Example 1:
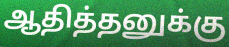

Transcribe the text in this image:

ஆதித்தனுக்கு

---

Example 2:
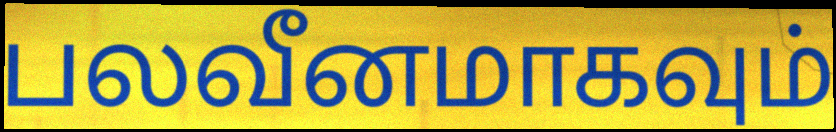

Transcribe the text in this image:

பலவீனமாகவும்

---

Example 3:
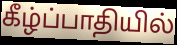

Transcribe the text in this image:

கீழ்ப்பாதியில்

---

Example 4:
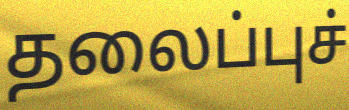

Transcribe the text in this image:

தலைப்புச்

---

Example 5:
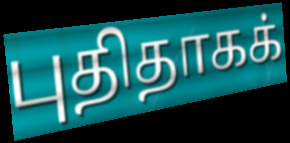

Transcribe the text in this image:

புதிதாகக்